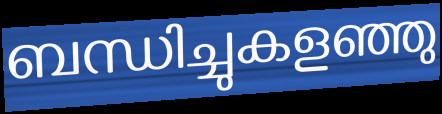
ബന്ധിച്ചുകളഞ്ഞു